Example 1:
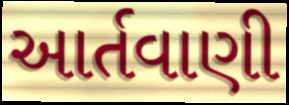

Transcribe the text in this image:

આર્તવાણી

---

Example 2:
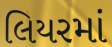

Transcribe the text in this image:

લિયરમાં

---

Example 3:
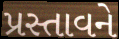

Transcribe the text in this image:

પ્રસ્તાવને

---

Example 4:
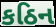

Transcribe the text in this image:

કઠિન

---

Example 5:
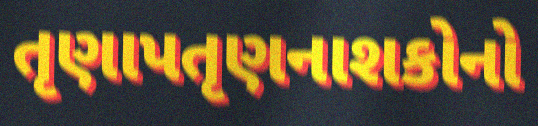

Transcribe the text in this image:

તૃણાપતૃણનાશકોનો